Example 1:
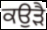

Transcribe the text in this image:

ਕਉੜੈ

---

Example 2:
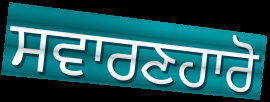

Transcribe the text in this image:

ਸਵਾਰਣਹਾਰੋ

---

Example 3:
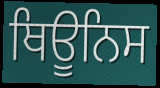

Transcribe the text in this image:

ਥਿਊਨਿਸ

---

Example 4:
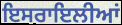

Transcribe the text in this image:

ਇਸਰਾਇਲੀਆਂ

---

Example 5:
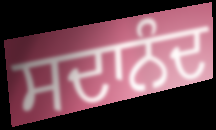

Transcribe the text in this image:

ਸਦਾਨੰਦ